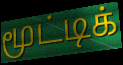
மூட்டிக்